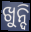
ଖୁନ୍ଦି